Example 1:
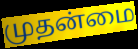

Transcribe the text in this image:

முதன்மை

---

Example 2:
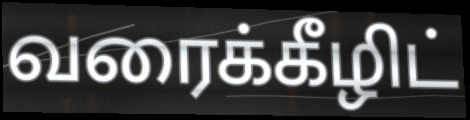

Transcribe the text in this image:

வரைக்கீழிட்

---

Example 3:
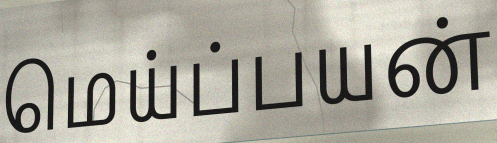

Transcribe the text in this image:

மெய்ப்பயன்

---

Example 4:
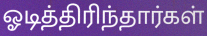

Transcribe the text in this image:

ஓடித்திரிந்தார்கள்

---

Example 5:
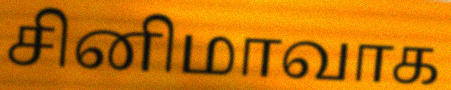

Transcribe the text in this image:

சினிமாவாக